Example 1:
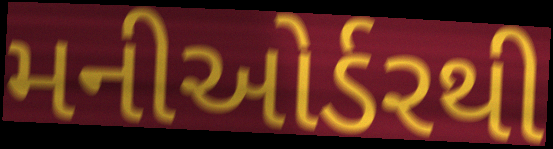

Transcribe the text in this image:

મનીઓર્ડરથી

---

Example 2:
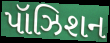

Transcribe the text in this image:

પૉઝિશન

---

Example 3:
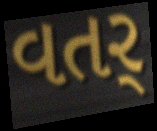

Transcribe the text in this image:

વતર્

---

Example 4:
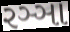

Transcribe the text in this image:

રઞ્ઞા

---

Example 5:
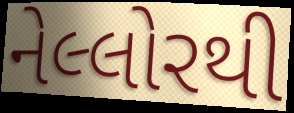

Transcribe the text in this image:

નેલ્લોરથી